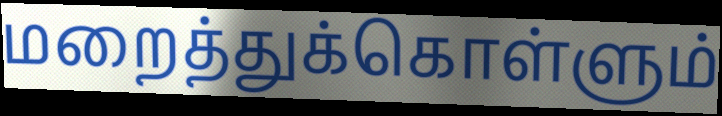
மறைத்துக்கொள்ளும்